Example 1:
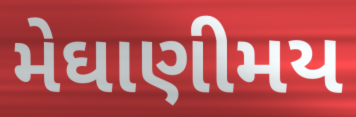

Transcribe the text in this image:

મેઘાણીમય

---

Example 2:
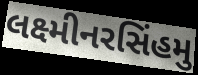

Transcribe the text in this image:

લક્ષ્મીનરસિંહમુ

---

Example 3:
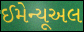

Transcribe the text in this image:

ઈમેન્યૂઅલ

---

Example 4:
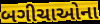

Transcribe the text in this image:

બગીચાઓના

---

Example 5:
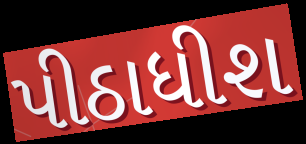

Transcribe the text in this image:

પીઠાધીશ